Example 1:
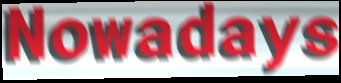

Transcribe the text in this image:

Nowadays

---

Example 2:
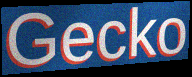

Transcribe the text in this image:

Gecko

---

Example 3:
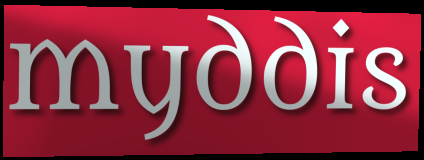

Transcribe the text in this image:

myddis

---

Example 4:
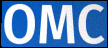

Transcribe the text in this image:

OMC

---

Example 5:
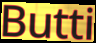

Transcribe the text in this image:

Butti